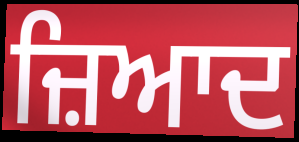
ਜ਼ਿਆਦ